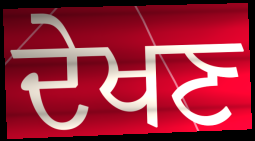
ਦੇਖਣ